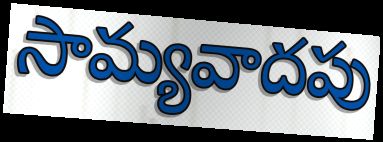
సామ్యవాదపు